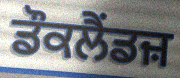
ਡੌਕਲੈਂਡਜ਼